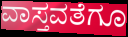
ವಾಸ್ತವತೆಗೂ